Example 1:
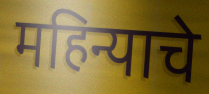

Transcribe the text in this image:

महिन्याचे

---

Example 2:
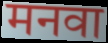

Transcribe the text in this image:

मनवा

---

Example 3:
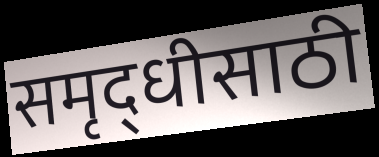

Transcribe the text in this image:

समृद्धीसाठी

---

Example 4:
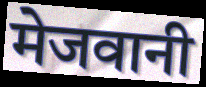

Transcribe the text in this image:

मेजवानी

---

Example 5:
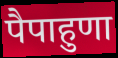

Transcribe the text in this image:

पैपाहुणा